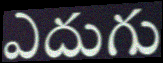
ఎదుగు